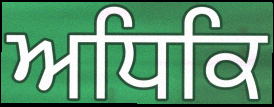
ਅਧਿਕਿ